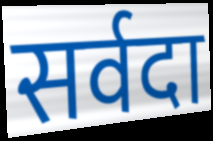
सर्वदा